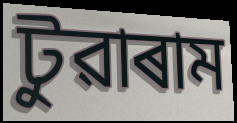
টুৱাৰাম